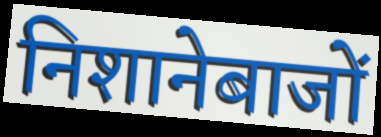
निशानेबाजों